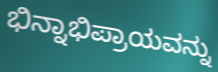
ಭಿನ್ನಾಭಿಪ್ರಾಯವನ್ನು